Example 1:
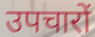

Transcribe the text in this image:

उपचारों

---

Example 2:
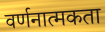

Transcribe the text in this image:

वर्णनात्मकता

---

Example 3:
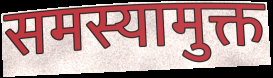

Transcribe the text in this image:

समस्यामुक्त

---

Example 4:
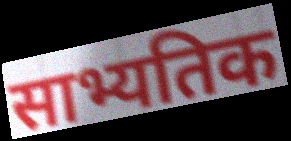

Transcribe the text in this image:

साभ्यतिक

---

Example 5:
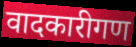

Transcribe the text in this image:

वादकारीगण